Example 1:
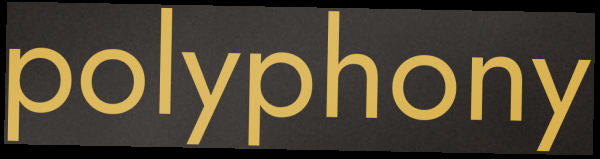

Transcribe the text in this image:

polyphony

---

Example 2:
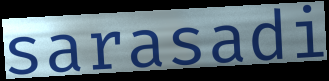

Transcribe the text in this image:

sarasadi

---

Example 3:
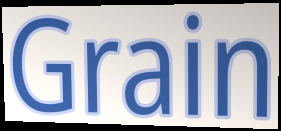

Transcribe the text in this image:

Grain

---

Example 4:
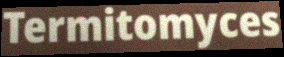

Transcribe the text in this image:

Termitomyces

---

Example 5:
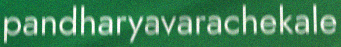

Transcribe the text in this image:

pandharyavarachekale